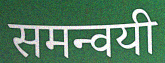
समन्वयी